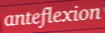
anteflexion